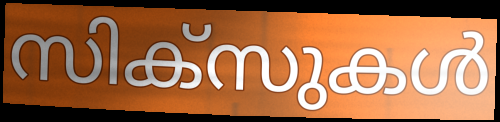
സിക്സുകൾ